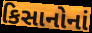
કિસાનોનાં